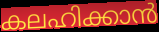
കലഹിക്കാൻ